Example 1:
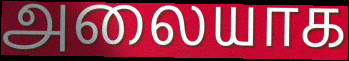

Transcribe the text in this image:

அலையாக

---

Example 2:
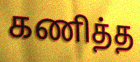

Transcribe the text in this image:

கணித்த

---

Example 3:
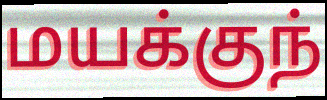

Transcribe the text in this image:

மயக்குந்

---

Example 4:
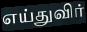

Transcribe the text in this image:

எய்துவிர்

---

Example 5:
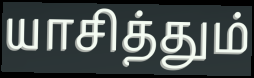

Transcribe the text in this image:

யாசித்தும்